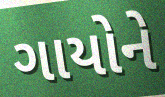
ગાયોને